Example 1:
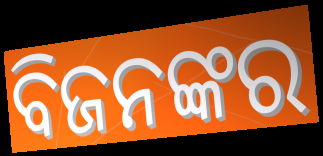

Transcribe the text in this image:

ବିଜନଙ୍କର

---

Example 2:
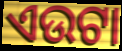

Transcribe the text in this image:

ଏଉଟା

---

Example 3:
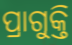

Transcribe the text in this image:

ପ୍ରାଗୁକ୍ତି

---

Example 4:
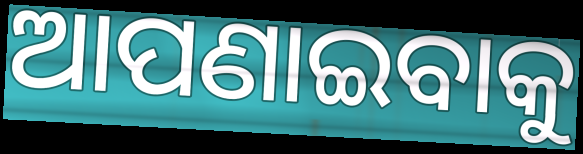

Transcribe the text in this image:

ଆପଣାଇବାକୁ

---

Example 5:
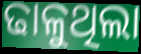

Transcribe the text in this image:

ଢାଳୁଥିଲା